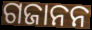
ଗଜାନନ